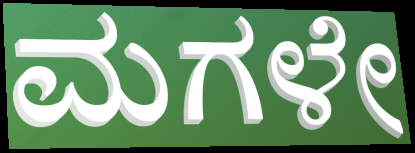
ಮಗಳೇ